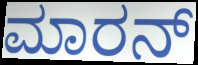
ಮಾರನ್